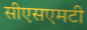
सीएसएमटी